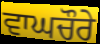
ਵਾਘਚੌਰੇ